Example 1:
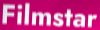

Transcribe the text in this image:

Filmstar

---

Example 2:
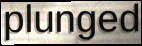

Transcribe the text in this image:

plunged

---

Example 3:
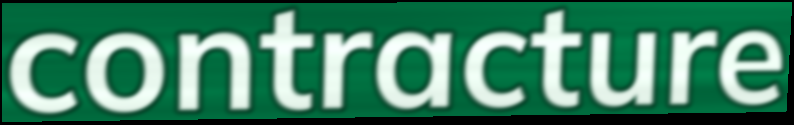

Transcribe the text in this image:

contracture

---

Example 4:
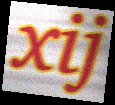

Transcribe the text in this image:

xij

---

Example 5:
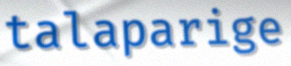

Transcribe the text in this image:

talaparige